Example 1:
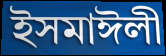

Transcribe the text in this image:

ইসমাঈলী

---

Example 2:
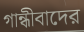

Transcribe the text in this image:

গান্ধীবাদের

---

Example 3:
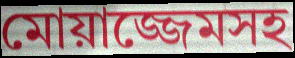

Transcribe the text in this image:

মোয়াজ্জেমসহ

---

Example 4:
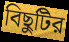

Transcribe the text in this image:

বিছুটির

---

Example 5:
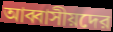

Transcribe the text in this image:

আব্বাসীয়দের